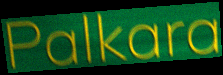
Palkara